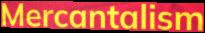
Mercantalism